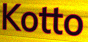
Kotto